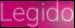
Legido